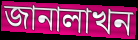
জানালাখন